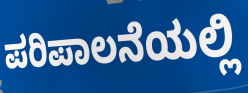
ಪರಿಪಾಲನೆಯಲ್ಲಿ